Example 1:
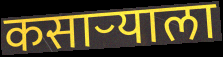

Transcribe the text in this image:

कसाऱ्याला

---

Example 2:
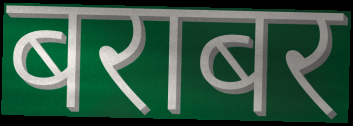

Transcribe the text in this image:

बराबर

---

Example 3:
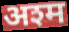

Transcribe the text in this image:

अश्म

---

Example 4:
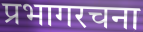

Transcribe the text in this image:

प्रभागरचना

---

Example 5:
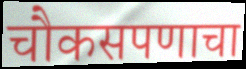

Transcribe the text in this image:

चौकसपणाचा